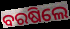
ବରଷିଲେ